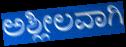
ಅಶ್ಲೀಲವಾಗಿ